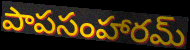
పాపసంహారమ్